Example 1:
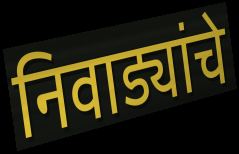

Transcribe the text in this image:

निवाड्यांचे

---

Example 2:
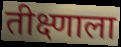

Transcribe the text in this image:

तीक्ष्णाला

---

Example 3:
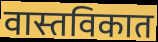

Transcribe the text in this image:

वास्तविकात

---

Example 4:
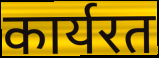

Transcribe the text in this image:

कार्यरत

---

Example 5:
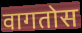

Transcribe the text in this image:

वागतोस